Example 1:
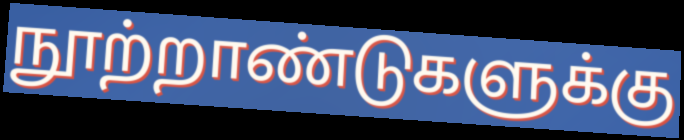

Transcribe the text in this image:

நூற்றாண்டுகளுக்கு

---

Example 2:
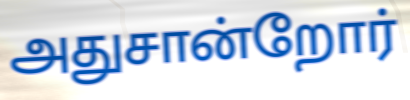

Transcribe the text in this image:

அதுசான்றோர்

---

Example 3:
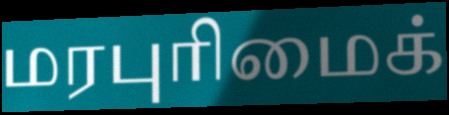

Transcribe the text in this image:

மரபுரிமைக்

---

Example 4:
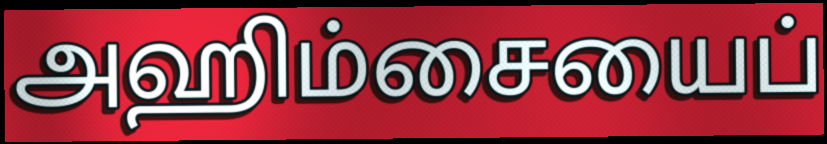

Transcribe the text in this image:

அஹிம்சையைப்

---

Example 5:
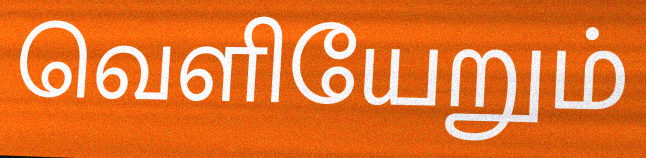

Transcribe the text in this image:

வெளியேறும்